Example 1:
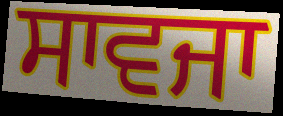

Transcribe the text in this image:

ਸਾਵਜਾ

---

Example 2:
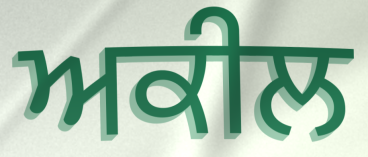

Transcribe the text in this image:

ਅਕੀਲ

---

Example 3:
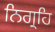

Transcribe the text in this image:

ਨਿਗ੍ਰਹਿ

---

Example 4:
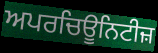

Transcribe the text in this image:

ਅਪਰਚਿਊਨਿਟੀਜ਼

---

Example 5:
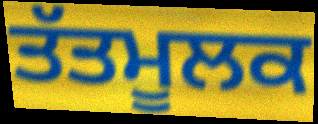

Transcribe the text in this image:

ਤੱਤਮੂਲਕ